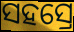
ସହସ୍ରେ